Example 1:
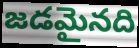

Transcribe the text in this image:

జడమైనది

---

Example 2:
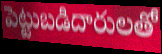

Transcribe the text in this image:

పెట్టుబడిదారులతో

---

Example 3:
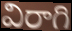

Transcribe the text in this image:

విరాగి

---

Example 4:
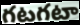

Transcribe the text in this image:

గటగటా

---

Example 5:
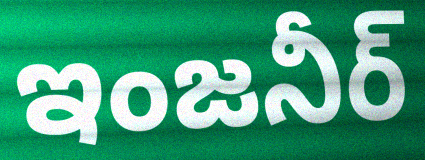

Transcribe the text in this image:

ఇంజనీర్